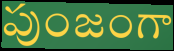
పుంజంగా